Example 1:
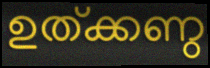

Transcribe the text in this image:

ഉത്ക്കണ്ഠ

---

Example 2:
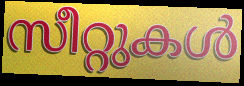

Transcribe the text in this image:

സീറ്റുകൾ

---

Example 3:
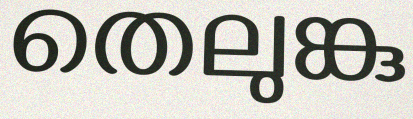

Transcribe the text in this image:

തെലുങ്കു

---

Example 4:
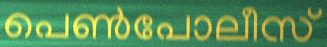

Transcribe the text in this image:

പെൺപോലീസ്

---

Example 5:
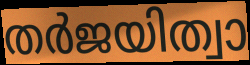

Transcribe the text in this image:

തർജയിത്വാ